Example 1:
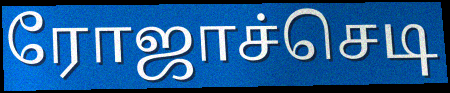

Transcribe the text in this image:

ரோஜாச்செடி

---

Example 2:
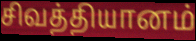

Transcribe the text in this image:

சிவத்தியானம்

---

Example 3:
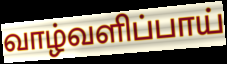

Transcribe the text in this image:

வாழ்வளிப்பாய்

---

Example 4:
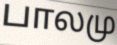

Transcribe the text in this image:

பாலமு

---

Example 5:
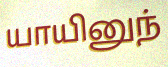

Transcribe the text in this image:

யாயினுந்